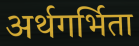
अर्थगर्भिता